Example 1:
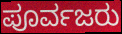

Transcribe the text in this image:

ಪೂರ್ವಜರು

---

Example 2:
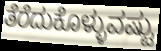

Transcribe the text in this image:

ತೆರೆದುಕೊಳ್ಳುವಷ್ಟು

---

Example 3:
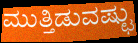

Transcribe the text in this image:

ಮುತ್ತಿಡುವಷ್ಟು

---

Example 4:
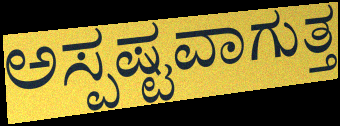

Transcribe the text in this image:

ಅಸ್ಪಷ್ಟವಾಗುತ್ತ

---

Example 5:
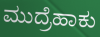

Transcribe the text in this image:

ಮುದ್ರೆಹಾಕು